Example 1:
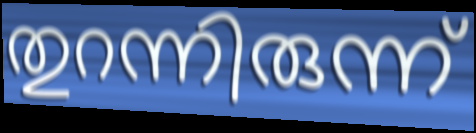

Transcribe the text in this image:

തുറന്നിരുന്ന്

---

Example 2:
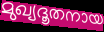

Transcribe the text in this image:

മുഖ്യദൂതനായ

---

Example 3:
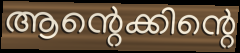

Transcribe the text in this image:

ആന്റെക്കിന്റെ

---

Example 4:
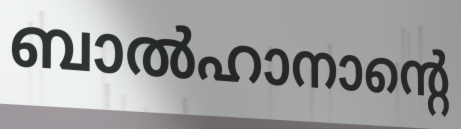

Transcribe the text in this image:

ബാൽഹാനാന്റെ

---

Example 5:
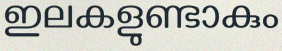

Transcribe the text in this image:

ഇലകളുണ്ടാകും